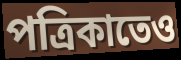
পত্রিকাতেও